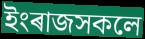
ইংৰাজসকলে